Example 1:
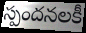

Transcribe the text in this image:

స్పందనలకీ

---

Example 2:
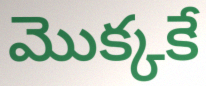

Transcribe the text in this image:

మొక్కకే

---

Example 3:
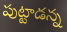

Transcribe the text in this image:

పుట్టాడన్న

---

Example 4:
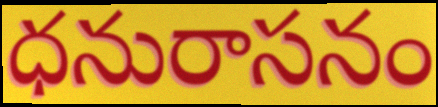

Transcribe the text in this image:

ధనురాసనం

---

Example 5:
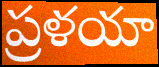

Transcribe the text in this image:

ప్రళయా